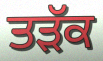
ਤੜੱਕ